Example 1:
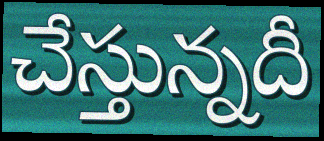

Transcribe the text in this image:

చేస్తున్నదీ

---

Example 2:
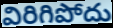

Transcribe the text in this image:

విరిగిపోదు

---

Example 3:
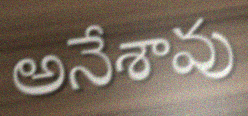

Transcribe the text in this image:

అనేశావు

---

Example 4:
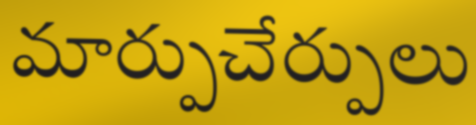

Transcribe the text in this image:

మార్పుచేర్పులు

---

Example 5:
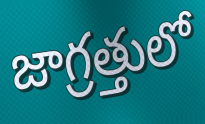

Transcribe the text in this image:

జాగ్రత్తులో